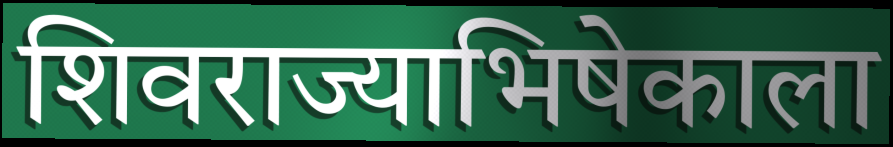
शिवराज्याभिषेकाला